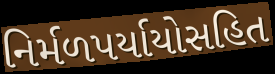
નિર્મળપર્યાયોસહિત